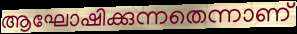
ആഘോഷിക്കുന്നതെന്നാണ്